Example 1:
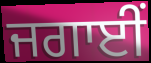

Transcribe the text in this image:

ਜਗਾਈਂ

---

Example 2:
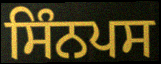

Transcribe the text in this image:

ਸਿੰਨਪਸ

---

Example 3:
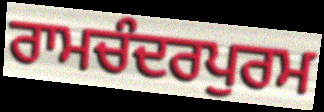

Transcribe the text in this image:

ਰਾਮਚੰਦਰਪੁਰਮ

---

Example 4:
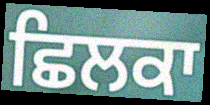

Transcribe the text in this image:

ਛਿਲਕਾ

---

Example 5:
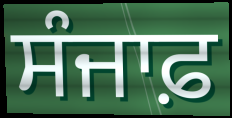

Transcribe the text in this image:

ਸੰਜਾਫ਼